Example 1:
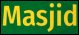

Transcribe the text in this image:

Masjid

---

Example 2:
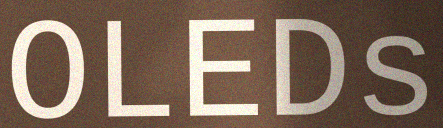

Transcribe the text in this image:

OLEDs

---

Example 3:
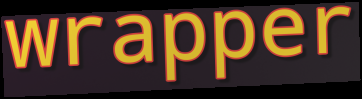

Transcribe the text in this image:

wrapper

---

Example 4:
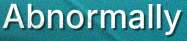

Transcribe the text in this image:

Abnormally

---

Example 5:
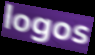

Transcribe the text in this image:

logos